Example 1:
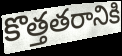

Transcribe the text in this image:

కొత్తతరానికి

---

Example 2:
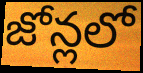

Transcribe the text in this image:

జోన్లలో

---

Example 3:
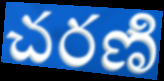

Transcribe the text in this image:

చరణి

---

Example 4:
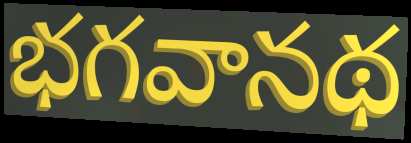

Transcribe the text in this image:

భగవానథ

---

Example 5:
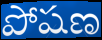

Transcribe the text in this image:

పోషణ